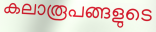
കലാരൂപങ്ങളുടെ